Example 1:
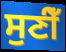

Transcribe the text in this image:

ਸੁਣੀਁ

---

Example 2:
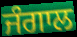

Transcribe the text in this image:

ਜੰਗਾਲ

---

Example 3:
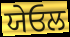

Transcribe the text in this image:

ਯੇਓਲ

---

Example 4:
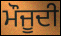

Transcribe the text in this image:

ਮੌਜੂਦੀ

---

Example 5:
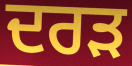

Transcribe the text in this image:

ਦਰੜ